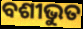
ବଶୀଭୁତ